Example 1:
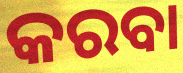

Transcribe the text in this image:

କରବା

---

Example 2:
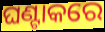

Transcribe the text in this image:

ଘଣ୍ଟାକରେ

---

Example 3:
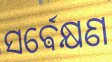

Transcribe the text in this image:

ସର୍ଵେକ୍ଷଣ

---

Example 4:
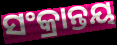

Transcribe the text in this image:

ସଂକ୍ରାନ୍ତୟ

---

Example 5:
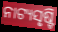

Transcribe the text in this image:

ନାଟ୍ୟସୃଷ୍ଟି